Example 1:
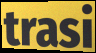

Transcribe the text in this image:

trasi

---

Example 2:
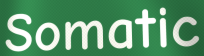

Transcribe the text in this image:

Somatic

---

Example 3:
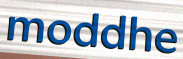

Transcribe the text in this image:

moddhe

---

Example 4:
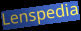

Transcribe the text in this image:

Lenspedia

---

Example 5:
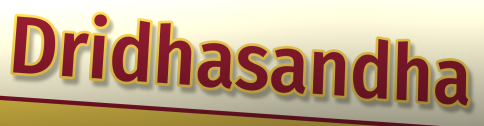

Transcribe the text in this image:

Dridhasandha